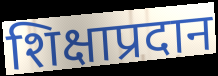
शिक्षाप्रदान